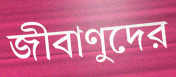
জীবাণুদের